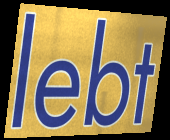
lebt